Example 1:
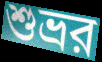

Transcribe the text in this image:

শুভ্রর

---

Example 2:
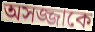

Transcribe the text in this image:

অসজ্জাকে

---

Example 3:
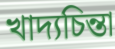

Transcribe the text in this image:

খাদ্যচিন্তা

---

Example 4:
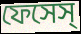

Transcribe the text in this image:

ফেসেস্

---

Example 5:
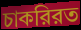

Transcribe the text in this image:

চাকরিরত